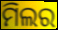
ମିଲର